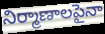
నిర్మాణాలపైనా